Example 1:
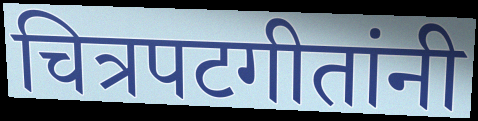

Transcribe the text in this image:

चित्रपटगीतांनी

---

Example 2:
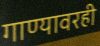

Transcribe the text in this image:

गाण्यावरही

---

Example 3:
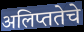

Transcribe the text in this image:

अलिप्ततेचे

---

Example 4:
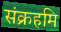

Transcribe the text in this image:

संक्रहमि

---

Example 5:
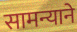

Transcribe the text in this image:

सामन्याने